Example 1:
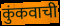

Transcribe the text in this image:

कुंकवाची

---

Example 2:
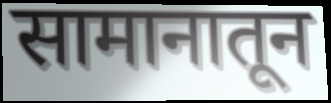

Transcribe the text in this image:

सामानातून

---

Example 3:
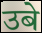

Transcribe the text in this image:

उबे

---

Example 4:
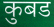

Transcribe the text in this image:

कुबड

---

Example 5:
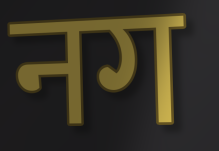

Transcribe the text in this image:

नग